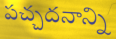
పచ్చదనాన్ని